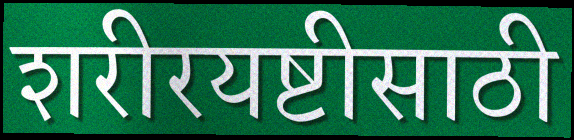
शरीरयष्टीसाठी